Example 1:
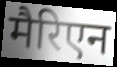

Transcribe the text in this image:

मैरिएन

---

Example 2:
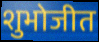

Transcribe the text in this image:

शुभोजीत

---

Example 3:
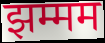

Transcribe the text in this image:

झम्मम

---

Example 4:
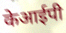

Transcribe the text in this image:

केआईपी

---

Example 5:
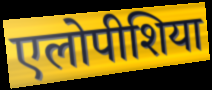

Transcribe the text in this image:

एलोपीशिया